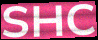
SHC